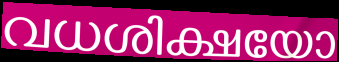
വധശിക്ഷയോ